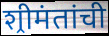
श्रीमंतांची